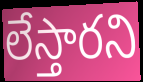
లేస్తారని